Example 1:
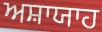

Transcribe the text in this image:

ਅਸ਼ਾਯਾਹ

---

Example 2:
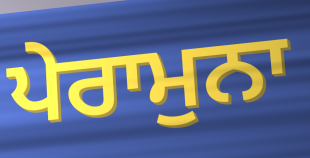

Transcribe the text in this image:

ਪੇਰਾਮੁਨਾ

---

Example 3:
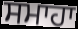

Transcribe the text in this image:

ਸਮਾਹਾ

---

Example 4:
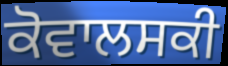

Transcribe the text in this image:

ਕੋਵਾਲਸਕੀ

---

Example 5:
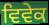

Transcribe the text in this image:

ਵਿਵੇਕ